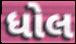
ધોલ